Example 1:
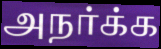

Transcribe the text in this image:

அநர்க்க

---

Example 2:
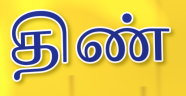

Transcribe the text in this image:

திண்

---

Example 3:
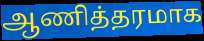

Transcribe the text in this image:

ஆணித்தரமாக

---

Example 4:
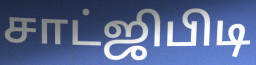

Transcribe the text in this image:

சாட்ஜிபிடி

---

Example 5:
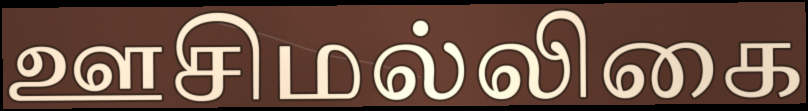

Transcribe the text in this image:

ஊசிமல்லிகை